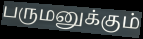
பருமனுக்கும்